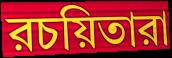
রচয়িতারা